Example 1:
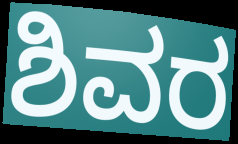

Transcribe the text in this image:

ಶಿವರ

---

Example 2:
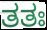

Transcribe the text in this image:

ತತಃ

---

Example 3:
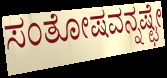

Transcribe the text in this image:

ಸಂತೋಷವನ್ನಷ್ಟೇ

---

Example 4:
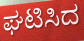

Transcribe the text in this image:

ಘಟಿಸಿದ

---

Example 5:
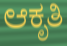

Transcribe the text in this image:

ಆಕೃತಿ